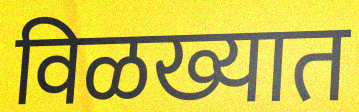
विळख्यात